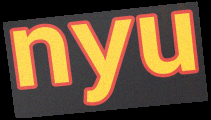
nyu